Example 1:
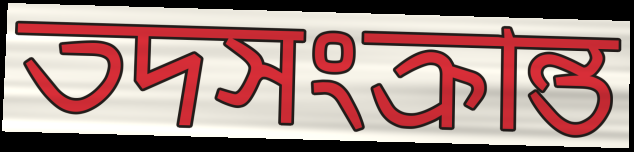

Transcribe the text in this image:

তদসংক্রান্ত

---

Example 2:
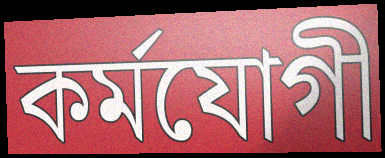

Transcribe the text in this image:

কর্মযোগী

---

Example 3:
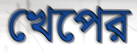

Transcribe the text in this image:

খেপের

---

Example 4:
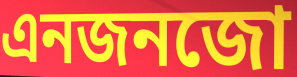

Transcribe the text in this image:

এনজনজো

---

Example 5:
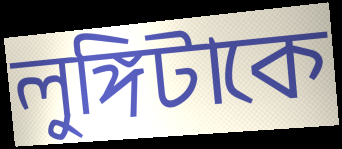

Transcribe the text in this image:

লুঙ্গিটাকে